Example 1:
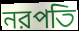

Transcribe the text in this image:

নরপতি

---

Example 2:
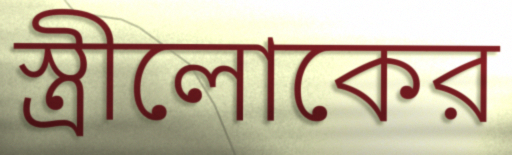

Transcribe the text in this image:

স্ত্রীলোকের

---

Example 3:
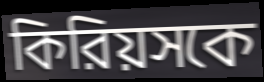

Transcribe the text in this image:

কিরিয়সকে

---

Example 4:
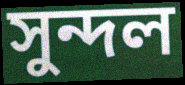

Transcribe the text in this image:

সুন্দল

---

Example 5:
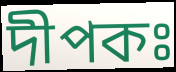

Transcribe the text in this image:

দীপকঃ